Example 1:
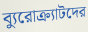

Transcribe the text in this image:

ব্যুরোক্র্যাটদের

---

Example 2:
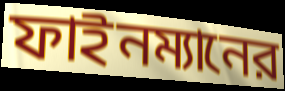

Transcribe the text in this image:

ফাইনম্যানের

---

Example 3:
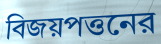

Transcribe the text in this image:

বিজয়পত্তনের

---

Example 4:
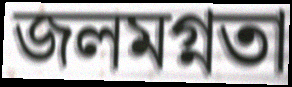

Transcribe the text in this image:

জলমগ্নতা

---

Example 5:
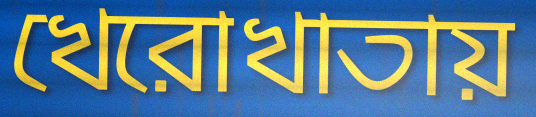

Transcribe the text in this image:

খেরোখাতায়